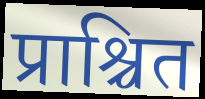
प्राश्चित